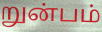
றுன்பம்